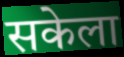
सकेला